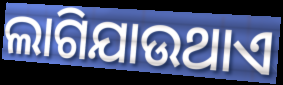
ଲାଗିଯାଉଥାଏ